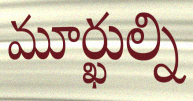
మూర్ఖుల్ని